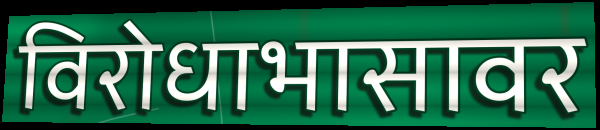
विरोधाभासावर